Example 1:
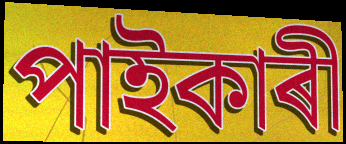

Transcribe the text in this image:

পাইকাৰী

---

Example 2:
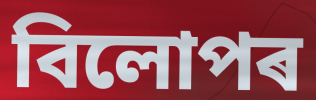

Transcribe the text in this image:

বিলোপৰ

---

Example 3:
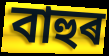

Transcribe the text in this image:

বাহুৰ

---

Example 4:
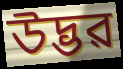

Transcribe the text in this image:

উদ্ভৱ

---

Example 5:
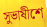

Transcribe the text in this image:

সুভাষীশে